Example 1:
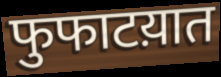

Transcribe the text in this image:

फुफाटय़ात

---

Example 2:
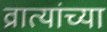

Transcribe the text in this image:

व्रात्यांच्या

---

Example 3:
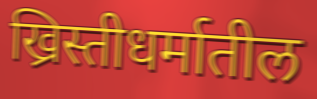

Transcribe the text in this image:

ख्रिस्तीधर्मातील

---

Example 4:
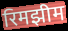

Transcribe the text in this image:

रिमझीम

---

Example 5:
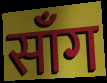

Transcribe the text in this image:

साँग